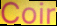
Coir